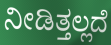
ನೀಡಿತ್ತಲ್ಲದೆ